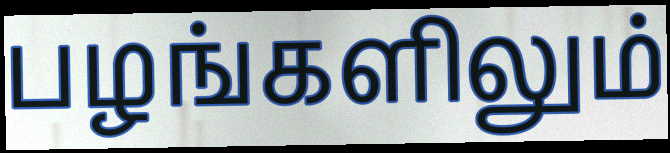
பழங்களிலும்